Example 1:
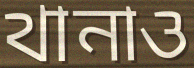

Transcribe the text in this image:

থানাও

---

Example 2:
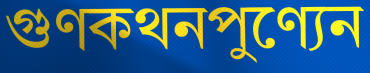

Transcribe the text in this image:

গুণকথনপুণ্যেন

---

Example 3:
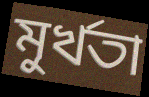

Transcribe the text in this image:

মুর্খতা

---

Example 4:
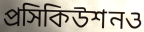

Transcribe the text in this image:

প্রসিকিউশনও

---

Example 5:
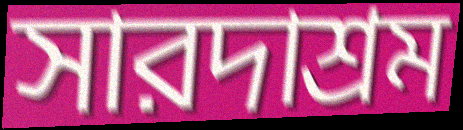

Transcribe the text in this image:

সারদাশ্রম